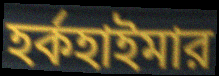
হর্কহাইমার